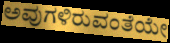
ಅವುಗಳಿರುವಂತೆಯೇ